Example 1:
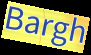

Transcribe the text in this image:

Bargh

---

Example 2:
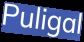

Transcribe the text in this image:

Puligal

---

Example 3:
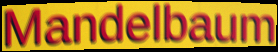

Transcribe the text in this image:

Mandelbaum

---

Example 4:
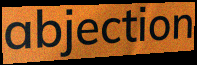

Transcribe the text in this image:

abjection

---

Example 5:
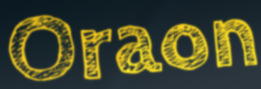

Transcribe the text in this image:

Oraon